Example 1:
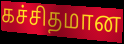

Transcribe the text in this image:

கச்சிதமான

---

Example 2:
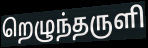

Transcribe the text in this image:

றெழுந்தருளி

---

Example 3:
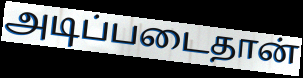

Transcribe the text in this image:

அடிப்படைதான்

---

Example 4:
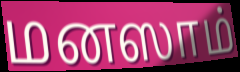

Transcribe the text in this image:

மனஸாம்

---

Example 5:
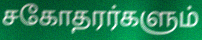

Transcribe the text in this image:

சகோதரர்களும்